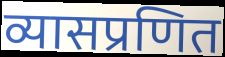
व्यासप्रणित